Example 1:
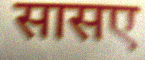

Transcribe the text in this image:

सासए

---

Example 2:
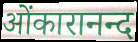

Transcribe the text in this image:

ओंकारानन्द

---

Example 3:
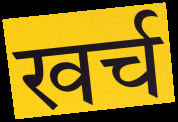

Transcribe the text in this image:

खर्च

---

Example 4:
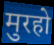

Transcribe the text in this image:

मुरहो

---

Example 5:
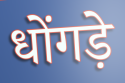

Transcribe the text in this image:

धोंगड़े